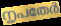
നൃപതേർ